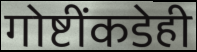
गोष्टींकडेही